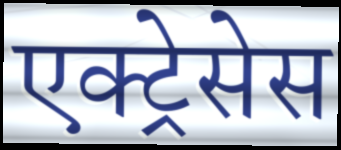
एक्ट्रेसेस